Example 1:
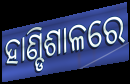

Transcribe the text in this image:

ହାଣ୍ଡିଶାଳରେ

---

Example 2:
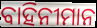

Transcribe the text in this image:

ବାହିନୀମାନ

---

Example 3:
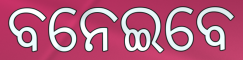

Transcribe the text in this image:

ବନେଇବେ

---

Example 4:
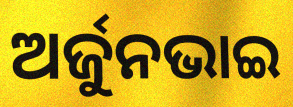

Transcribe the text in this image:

ଅର୍ଜୁନଭାଇ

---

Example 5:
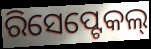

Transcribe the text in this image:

ରିସେପ୍ଟେକଲ୍